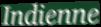
Indienne